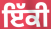
ਇੱਕੀ